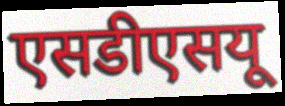
एसडीएसयू